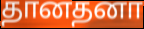
தானதனா